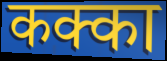
कक्का